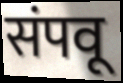
संपवू